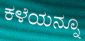
ಕಳೆಯನ್ನೂ